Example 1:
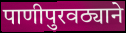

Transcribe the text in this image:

पाणीपुरवठ्याने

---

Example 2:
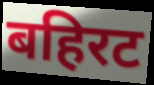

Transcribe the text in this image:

बहिरट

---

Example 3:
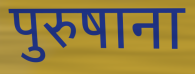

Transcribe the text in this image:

पुरुषाना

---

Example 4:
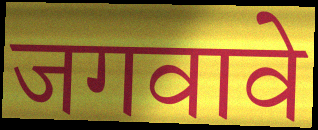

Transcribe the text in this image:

जगवावे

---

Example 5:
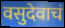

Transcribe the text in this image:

वसुदेवाचं